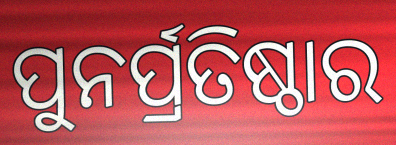
ପୁନର୍ପ୍ରତିଷ୍ଠାର